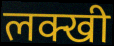
लक्खी